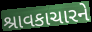
શ્રાવકાચારને